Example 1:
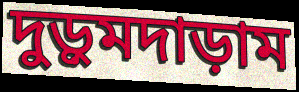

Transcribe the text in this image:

দুড়ুমদাড়াম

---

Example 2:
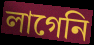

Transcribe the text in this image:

লাগেনি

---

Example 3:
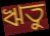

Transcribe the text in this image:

ঋতু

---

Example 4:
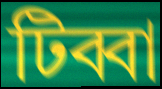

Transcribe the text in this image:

টিব্বা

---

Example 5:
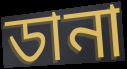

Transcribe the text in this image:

ডানা